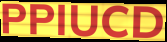
PPIUCD